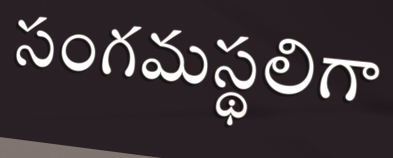
సంగమస్థలిగా